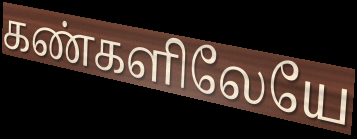
கண்களிலேயே